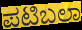
ಪಟಿಬಲಾ